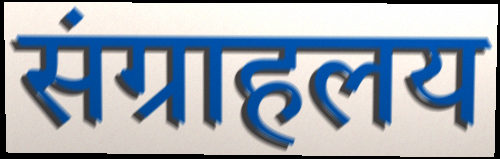
संग्राहलय